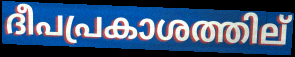
ദീപപ്രകാശത്തില്